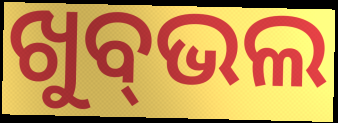
ଖୁବ୍‌ଭଲ